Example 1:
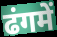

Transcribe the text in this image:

ढंगमें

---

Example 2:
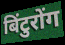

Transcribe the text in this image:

बिंटुरोंग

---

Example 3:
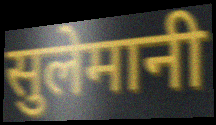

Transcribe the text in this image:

सुलेमानी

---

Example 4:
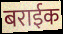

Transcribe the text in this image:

बराईक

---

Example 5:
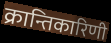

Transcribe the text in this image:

क्रान्तिकारिणी